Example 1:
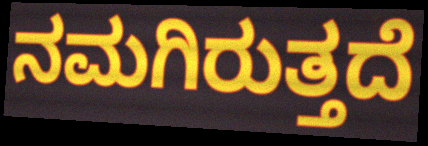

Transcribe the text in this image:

ನಮಗಿರುತ್ತದೆ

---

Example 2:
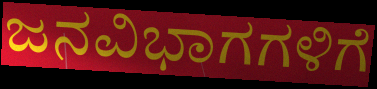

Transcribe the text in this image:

ಜನವಿಭಾಗಗಳಿಗೆ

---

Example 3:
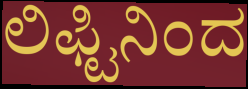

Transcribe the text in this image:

ಲಿಫ್ಟಿನಿಂದ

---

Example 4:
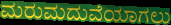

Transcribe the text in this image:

ಮರುಮದುವೆಯಾಗಲು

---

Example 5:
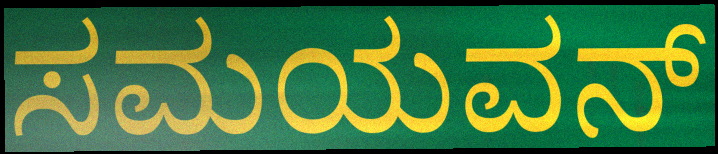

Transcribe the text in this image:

ಸಮಯವನ್